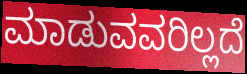
ಮಾಡುವವರಿಲ್ಲದೆ